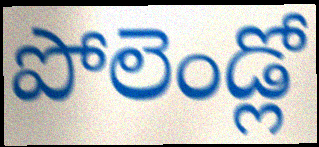
పోలెండ్లో